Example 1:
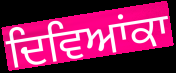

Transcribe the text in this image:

ਦਿਵਿਆਂਕਾ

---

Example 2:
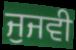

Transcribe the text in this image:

ਜੁਜਵੀ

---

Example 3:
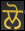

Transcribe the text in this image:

ਲੋ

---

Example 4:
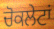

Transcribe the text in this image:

ਚੋਕਲੇਟਾਂ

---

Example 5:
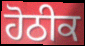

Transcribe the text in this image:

ਹੋਠੀਕ